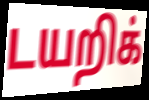
டயறிக்